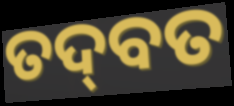
ତଦ୍‌ବତ